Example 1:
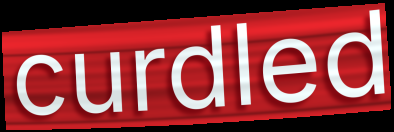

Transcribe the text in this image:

curdled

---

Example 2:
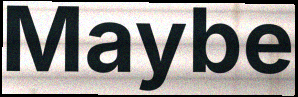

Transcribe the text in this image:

Maybe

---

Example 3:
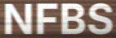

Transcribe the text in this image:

NFBS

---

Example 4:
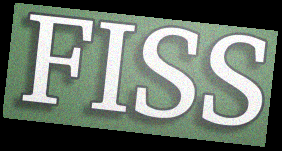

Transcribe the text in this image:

FISS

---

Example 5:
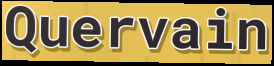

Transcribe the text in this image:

Quervain